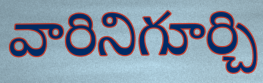
వారినిగూర్చి